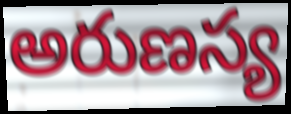
అరుణస్య